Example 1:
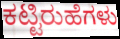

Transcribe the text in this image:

ಕಟ್ಟಿರುಹೆಗಳು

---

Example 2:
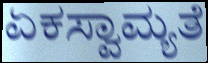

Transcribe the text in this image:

ಏಕಸ್ವಾಮ್ಯತೆ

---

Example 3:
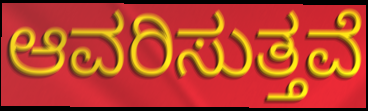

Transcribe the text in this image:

ಆವರಿಸುತ್ತವೆ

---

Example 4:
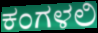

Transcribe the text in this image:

ಕಂಗಳಲಿ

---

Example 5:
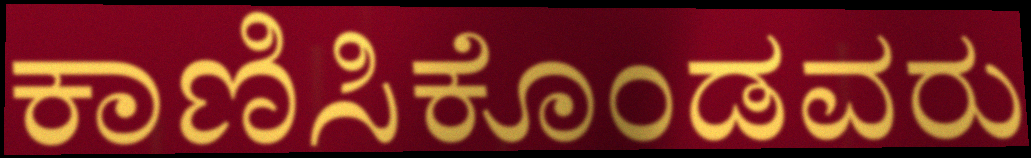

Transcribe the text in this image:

ಕಾಣಿಸಿಕೊಂಡವರು